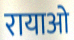
रायाओ